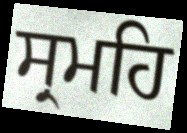
ਸ੍ਰਮਹਿ